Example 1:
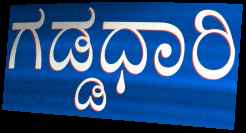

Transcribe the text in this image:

ಗಡ್ಡಧಾರಿ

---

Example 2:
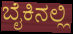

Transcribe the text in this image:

ಬೈಕಿನಲ್ಲಿ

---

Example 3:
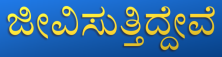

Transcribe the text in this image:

ಜೀವಿಸುತ್ತಿದ್ದೇವೆ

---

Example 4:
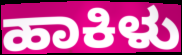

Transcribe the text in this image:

ಹಾಕಿಳು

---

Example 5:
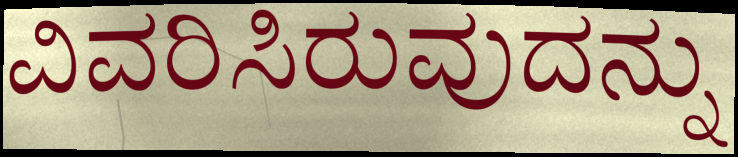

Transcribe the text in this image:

ವಿವರಿಸಿರುವುದನ್ನು